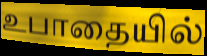
உபாதையில்